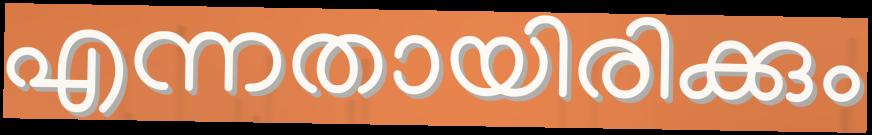
എന്നതായിരിക്കും